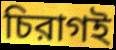
চিরাগই